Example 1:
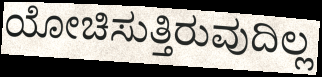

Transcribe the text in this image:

ಯೋಚಿಸುತ್ತಿರುವುದಿಲ್ಲ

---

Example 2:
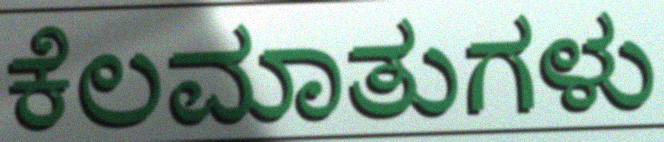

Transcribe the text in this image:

ಕೆಲಮಾತುಗಳು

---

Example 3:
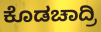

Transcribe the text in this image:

ಕೊಡಚಾದ್ರಿ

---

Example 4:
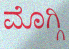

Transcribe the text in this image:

ಮೊಗ್ಗಿ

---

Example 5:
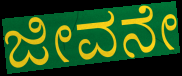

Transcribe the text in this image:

ಜೀವನೇ